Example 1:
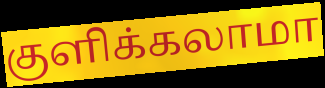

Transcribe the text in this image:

குளிக்கலாமா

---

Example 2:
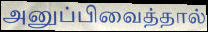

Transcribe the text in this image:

அனுப்பிவைத்தால்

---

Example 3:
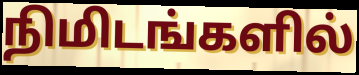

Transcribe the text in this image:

நிமிடங்களில்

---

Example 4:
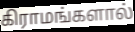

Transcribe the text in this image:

கிராமங்களால்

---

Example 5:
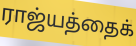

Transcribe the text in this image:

ராஜ்யத்தைக்